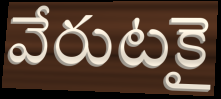
వేరుటకై